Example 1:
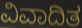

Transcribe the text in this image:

ವಿವಾದಿತ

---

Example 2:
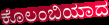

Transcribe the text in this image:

ಕೊಲಂಬಿಯಾದ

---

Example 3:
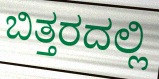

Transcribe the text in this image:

ಬಿತ್ತರದಲ್ಲಿ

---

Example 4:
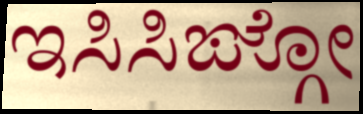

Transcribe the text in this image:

ಇಸಿಸಿಙ್ಗೋ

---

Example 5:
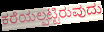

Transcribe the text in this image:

ಕರೆಯಲ್ಪಟ್ಟಿರುವುದು